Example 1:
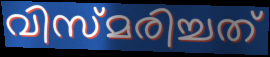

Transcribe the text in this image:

വിസ്മരിച്ചത്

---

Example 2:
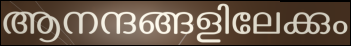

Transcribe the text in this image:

ആനന്ദങ്ങളിലേക്കും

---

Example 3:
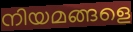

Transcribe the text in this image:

നിയമങ്ങളെ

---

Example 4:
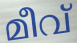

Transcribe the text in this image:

മീവ്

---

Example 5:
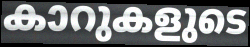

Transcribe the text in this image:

കാറുകളുടെ